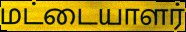
மட்டையாளர்